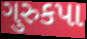
ગુરુકપા